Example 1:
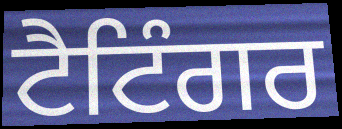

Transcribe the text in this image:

ਟੈਟਿੰਗਰ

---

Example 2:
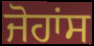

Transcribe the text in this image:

ਜੋਹਾਂਸ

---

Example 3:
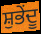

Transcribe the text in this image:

ਸ਼ੁਭੇਂਦੂ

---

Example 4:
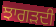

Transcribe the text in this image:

ਝਾਗੜਦੀ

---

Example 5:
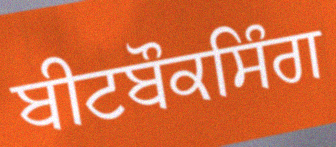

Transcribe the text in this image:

ਬੀਟਬੌਕਸਿੰਗ